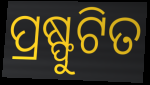
ପ୍ରଷ୍ଫୁଟିତ